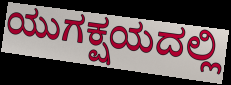
ಯುಗಕ್ಷಯದಲ್ಲಿ